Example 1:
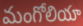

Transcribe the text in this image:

మంగోలియా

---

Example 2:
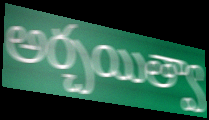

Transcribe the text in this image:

అర్చయిత్వా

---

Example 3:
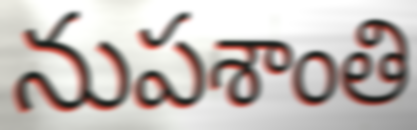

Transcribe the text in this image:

నుపశాంతి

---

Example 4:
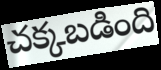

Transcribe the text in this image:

చక్కబడింది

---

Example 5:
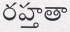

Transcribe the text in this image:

రహ్తతా